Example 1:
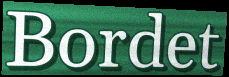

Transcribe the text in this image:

Bordet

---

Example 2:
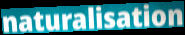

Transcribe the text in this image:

naturalisation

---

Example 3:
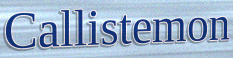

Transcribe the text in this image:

Callistemon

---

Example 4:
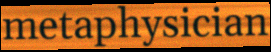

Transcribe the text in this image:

metaphysician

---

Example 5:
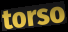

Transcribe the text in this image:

torso